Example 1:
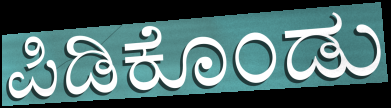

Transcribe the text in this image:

ಪಿಡಿಕೊಂಡು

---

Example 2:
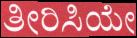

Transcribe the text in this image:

ತೀರಿಸಿಯೇ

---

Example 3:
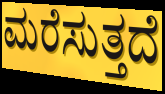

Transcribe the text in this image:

ಮರೆಸುತ್ತದೆ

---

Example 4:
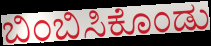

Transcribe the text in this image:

ಬಿಂಬಿಸಿಕೊಂಡು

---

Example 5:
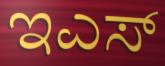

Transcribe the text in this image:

ಇಎಸ್